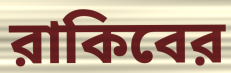
রাকিবের